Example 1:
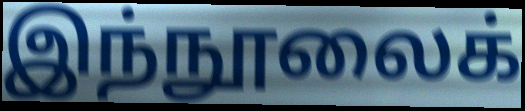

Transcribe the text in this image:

இந்நூலைக்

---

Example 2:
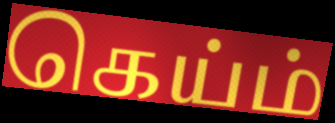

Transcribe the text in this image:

கெய்ம்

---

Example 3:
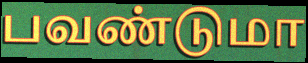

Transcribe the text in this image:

பவண்டுமா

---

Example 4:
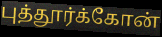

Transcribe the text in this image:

புத்தூர்க்கோன்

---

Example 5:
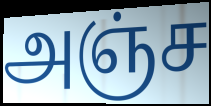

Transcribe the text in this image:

அஞ்ச